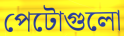
পেটোগুলো